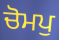
ਚੋਮਪੁ